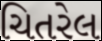
ચિતરેલ